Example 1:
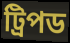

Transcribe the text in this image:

ট্রিপড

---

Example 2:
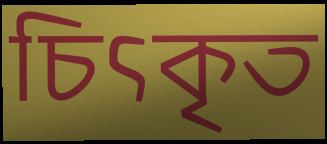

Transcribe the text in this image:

চিৎকৃত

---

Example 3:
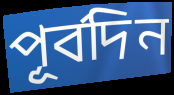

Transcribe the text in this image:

পূর্বদিন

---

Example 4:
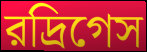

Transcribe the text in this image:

রদ্রিগেস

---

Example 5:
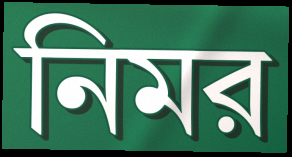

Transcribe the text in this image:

নিমর